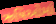
ઋષિઓમાં